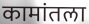
कामांतला